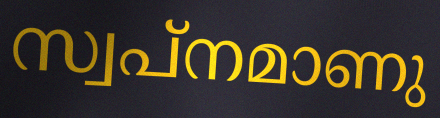
സ്വപ്നമാണു